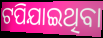
ଟପିଯାଇଥିବା